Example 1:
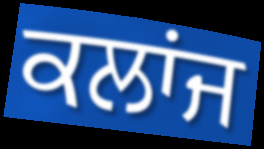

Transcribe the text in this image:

ਕਲਾਂਜ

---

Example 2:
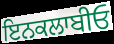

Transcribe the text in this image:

ਇਨਕਲਾਬੀਓ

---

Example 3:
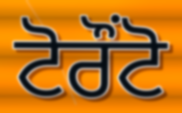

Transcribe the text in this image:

ਟੋਰੌੰਟੋ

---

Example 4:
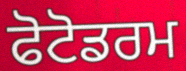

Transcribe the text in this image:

ਫੋਟੋਡਰਮ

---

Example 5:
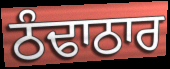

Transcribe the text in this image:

ਠੰਢਾਠਾਰ